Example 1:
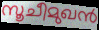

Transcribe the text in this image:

സൂചീമുഖൻ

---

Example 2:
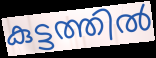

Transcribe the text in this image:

കുട്ടത്തിൽ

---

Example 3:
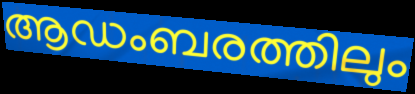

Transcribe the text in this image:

ആഡംബരത്തിലും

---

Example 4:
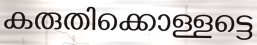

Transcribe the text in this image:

കരുതിക്കൊള്ളട്ടെ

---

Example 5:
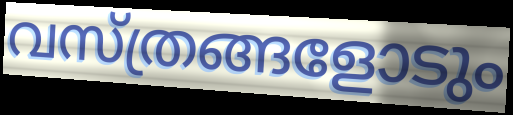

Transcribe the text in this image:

വസ്ത്രങ്ങളോടും